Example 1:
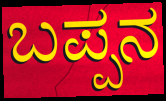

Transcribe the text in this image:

ಬಪ್ಪನ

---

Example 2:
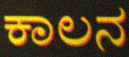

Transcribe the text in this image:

ಕಾಲನ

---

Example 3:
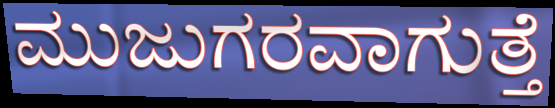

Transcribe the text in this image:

ಮುಜುಗರವಾಗುತ್ತೆ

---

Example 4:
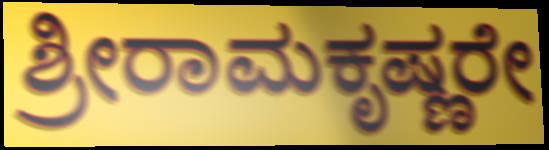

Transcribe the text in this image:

ಶ್ರೀರಾಮಕೃಷ್ಣರೇ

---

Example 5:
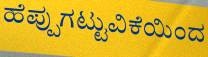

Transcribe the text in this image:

ಹೆಪ್ಪುಗಟ್ಟುವಿಕೆಯಿಂದ